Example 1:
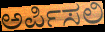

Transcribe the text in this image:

ಅರ್ಪಿಸಲಿ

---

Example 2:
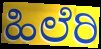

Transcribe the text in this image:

ಹಿಲೆರಿ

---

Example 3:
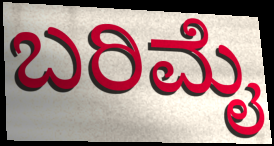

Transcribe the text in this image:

ಬರಿಮೈ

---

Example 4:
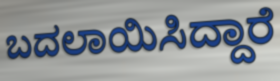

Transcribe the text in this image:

ಬದಲಾಯಿಸಿದ್ದಾರೆ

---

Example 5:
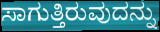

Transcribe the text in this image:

ಸಾಗುತ್ತಿರುವುದನ್ನು